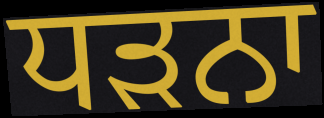
ਧੜਨਾ